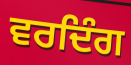
ਵਰਦਿੰਗ